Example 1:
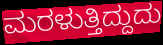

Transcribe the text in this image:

ಮರಳುತ್ತಿದ್ದುದು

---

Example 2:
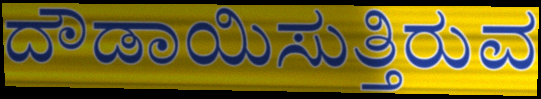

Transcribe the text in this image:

ದೌಡಾಯಿಸುತ್ತಿರುವ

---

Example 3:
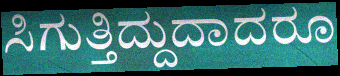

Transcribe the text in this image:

ಸಿಗುತ್ತಿದ್ದುದಾದರೂ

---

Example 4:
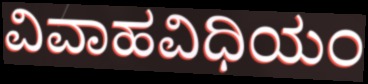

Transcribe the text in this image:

ವಿವಾಹವಿಧಿಯಂ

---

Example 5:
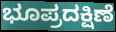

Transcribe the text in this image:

ಭೂಪ್ರದಕ್ಷಿಣೆ